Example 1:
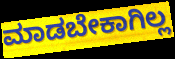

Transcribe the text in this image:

ಮಾಡಬೇಕಾಗಿಲ್ಲ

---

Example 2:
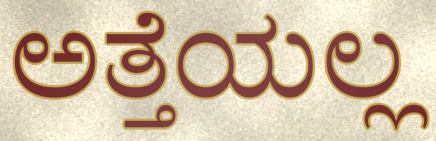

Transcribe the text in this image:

ಅತ್ತೆಯಲ್ಲ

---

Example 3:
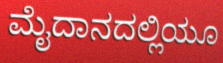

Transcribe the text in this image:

ಮೈದಾನದಲ್ಲಿಯೂ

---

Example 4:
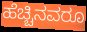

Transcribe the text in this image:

ಹೆಚ್ಚಿನವರೂ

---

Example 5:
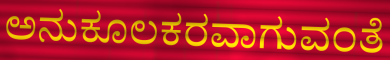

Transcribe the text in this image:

ಅನುಕೂಲಕರವಾಗುವಂತೆ